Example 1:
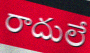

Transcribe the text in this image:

రాదులే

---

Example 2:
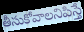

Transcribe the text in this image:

తీసుకోవాలనిపిస్తే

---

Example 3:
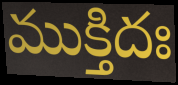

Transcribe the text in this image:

ముక్తిదః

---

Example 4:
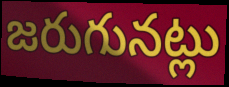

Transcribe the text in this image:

జరుగునట్లు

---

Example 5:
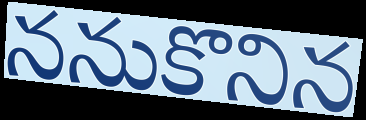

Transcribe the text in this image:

ననుకొనిన